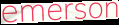
emerson